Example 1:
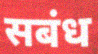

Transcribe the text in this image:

सबंध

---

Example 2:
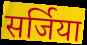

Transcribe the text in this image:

सर्जिया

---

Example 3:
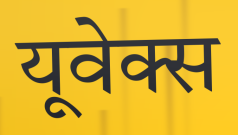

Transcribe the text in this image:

यूवेक्स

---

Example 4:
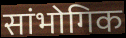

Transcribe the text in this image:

सांभोगिक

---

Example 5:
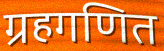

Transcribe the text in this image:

ग्रहगणित